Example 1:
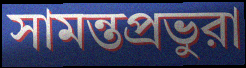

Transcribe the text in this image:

সামন্তপ্রভুরা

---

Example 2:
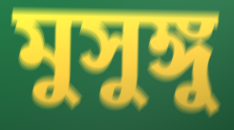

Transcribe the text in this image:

মুসুঙ্গু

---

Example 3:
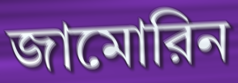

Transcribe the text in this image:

জামোরিন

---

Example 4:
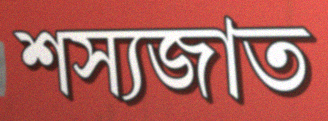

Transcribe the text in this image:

শস্যজাত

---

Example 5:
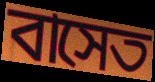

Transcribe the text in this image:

বাসেত